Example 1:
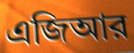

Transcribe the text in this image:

এজিআর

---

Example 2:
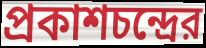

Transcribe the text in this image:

প্রকাশচন্দ্রের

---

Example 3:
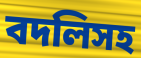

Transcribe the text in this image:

বদলিসহ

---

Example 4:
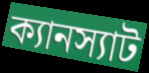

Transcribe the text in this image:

ক্যানস্যাট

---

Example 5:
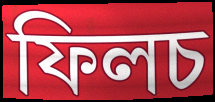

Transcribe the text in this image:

ফিলচ